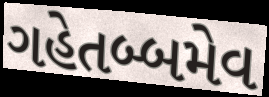
ગહેતબ્બમેવ